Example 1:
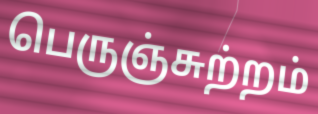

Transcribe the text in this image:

பெருஞ்சுற்றம்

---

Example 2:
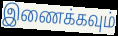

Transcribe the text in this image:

இணைக்கவும்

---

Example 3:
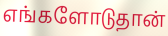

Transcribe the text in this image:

எங்களோடுதான்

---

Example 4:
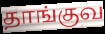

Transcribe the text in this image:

தாங்குவ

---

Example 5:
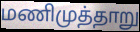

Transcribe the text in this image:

மணிமுத்தாறு